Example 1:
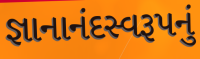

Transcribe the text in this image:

જ્ઞાનાનંદસ્વરૂપનું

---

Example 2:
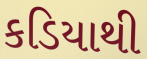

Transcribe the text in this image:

કડિયાથી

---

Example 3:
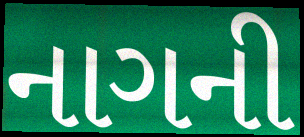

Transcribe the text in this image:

નાગની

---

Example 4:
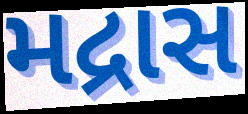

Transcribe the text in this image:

મદ્રાસ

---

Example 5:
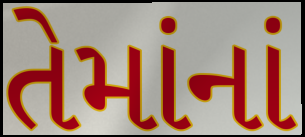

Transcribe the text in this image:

તેમાંનાં